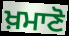
ਖ਼ਮਾਣੋ